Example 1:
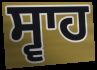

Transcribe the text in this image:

ਸ੍ਵਾਹ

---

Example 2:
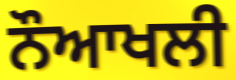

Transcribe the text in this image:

ਨੌਆਖਲੀ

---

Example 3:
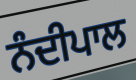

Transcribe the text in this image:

ਨੰਦੀਪਾਲ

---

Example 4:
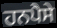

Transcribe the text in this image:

ਹਨਪੈਸੇ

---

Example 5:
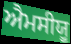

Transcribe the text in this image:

ਐਮਸੀਯੂ